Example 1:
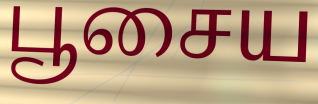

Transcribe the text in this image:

பூசைய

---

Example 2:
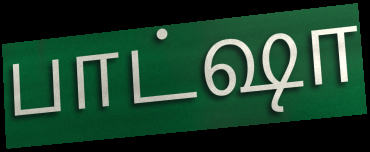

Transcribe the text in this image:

பாட்ஷா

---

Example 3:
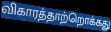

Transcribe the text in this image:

விகாரத்தாற்றொக்கது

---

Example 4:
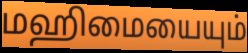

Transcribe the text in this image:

மஹிமையையும்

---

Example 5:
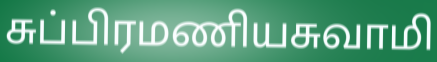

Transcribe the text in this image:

சுப்பிரமணியசுவாமி